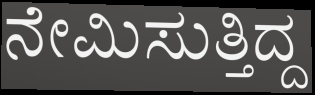
ನೇಮಿಸುತ್ತಿದ್ದ